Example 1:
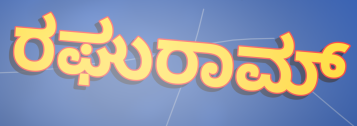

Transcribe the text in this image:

ರಘುರಾಮ್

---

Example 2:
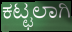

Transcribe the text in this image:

ಕಟ್ಟಲಾಗಿ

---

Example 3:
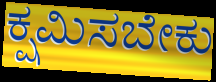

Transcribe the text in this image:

ಕ್ಷಮಿಸಬೇಕು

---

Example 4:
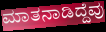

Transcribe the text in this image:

ಮಾತನಾಡಿದ್ದೆವು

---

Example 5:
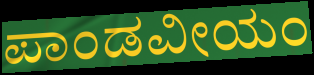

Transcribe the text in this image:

ಪಾಂಡವೀಯಂ